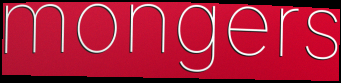
mongers